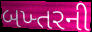
બખ્તરની